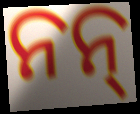
ନନ୍